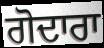
ਗੋਦਾਰਾ